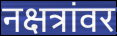
नक्षत्रांवर